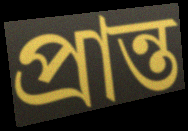
প্ৰান্ত